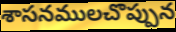
శాసనములచొప్పున